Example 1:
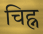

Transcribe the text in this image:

चिह्न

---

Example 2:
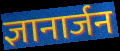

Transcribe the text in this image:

ज्ञानार्जन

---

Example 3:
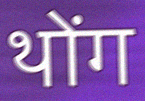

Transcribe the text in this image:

थोंग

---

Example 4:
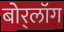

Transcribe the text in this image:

बोर्‌लॉग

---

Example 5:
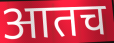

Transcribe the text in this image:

आतच